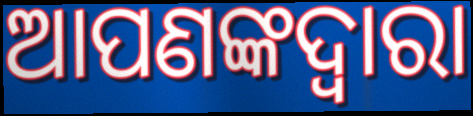
ଆପଣଙ୍କଦ୍ଵାରା